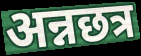
अन्नछत्र